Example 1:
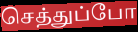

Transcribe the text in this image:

செத்துப்போ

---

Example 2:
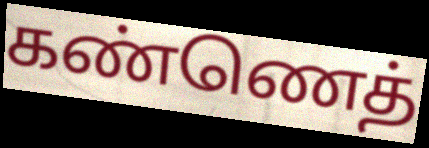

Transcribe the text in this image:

கண்ணெத்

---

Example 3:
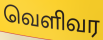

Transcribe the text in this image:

வெளிவர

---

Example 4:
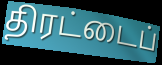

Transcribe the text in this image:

திரட்டைப்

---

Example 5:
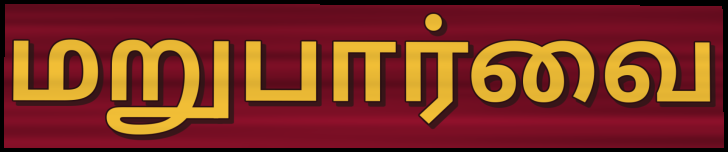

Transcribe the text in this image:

மறுபார்வை